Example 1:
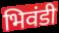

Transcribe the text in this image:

भिवंडी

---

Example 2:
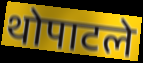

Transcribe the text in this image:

थोपाटले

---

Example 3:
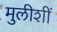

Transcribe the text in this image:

मुलीशीं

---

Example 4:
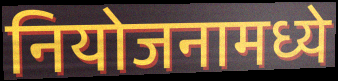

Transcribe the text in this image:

नियोजनामध्ये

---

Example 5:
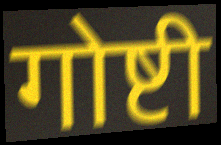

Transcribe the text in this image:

गोष्टी